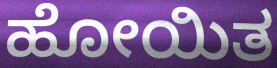
ಹೋಯಿತ